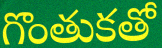
గొంతుకతో